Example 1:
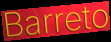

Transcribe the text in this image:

Barreto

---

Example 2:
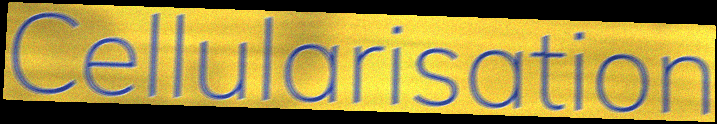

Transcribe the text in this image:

Cellularisation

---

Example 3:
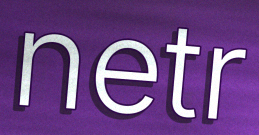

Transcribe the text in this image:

netr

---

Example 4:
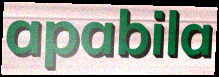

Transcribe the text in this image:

apabila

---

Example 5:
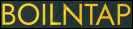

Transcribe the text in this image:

BOILNTAP